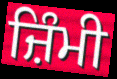
ਜ਼ਿੰਮੀ